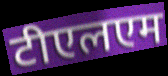
टीएलएम